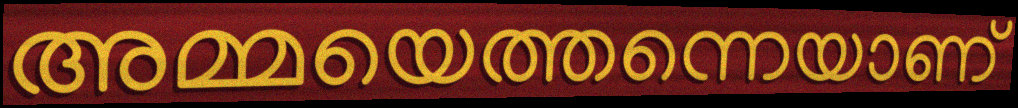
അമ്മയെത്തന്നെയാണ്